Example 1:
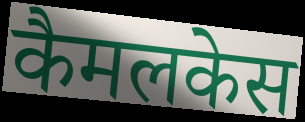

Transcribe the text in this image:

कैमलकेस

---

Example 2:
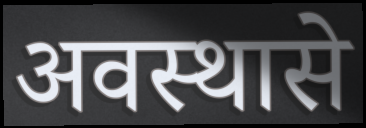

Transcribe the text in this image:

अवस्थासे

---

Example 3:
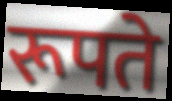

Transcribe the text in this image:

रूपते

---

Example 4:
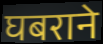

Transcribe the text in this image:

घबराने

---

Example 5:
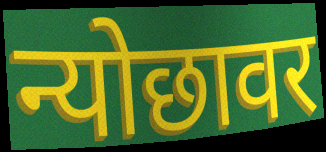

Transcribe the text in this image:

न्योछावर